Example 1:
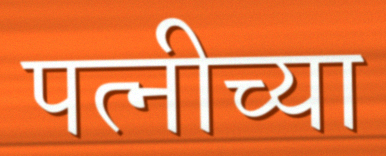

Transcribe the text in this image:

पत्नीच्या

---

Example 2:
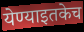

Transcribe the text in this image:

येण्याइतकेच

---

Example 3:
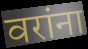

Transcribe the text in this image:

वरांना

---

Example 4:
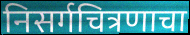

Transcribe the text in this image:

निसर्गचित्रणाचा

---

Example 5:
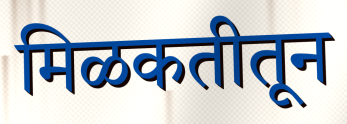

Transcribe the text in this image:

मिळकतीतून